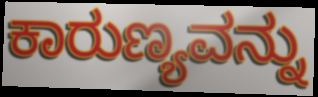
ಕಾರುಣ್ಯವನ್ನು